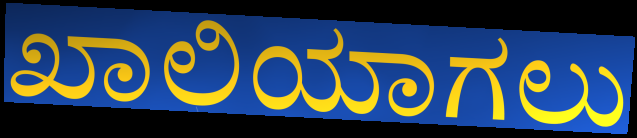
ಖಾಲಿಯಾಗಲು